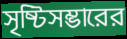
সৃষ্টিসম্ভারের